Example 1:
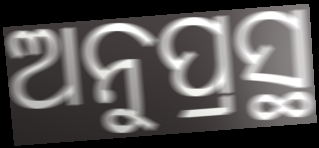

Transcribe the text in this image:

ଅନୁପ୍ରସ୍ଥ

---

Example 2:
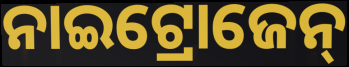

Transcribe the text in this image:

ନାଇଟ୍ରୋଜେନ୍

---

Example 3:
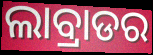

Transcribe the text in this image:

ଲାବ୍ରାଡର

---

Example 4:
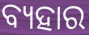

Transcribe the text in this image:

ବ୍ୟହାର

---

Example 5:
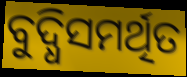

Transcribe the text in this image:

ବୁଦ୍ଧିସମର୍ଥିତ